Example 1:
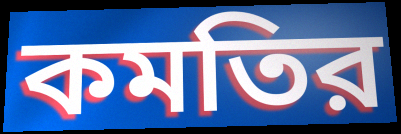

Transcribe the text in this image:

কমতির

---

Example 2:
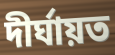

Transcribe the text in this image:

দীর্ঘায়ত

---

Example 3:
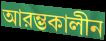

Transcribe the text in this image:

আরম্ভকালীন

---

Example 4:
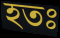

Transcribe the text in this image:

হতঃ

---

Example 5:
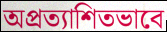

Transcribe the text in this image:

অপ্রত্যাশিতভাবে